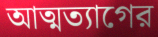
আত্মত্যাগের